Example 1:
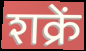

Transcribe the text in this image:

शक्रें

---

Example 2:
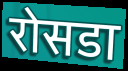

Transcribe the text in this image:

रोसडा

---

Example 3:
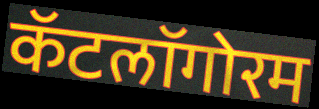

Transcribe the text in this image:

कॅटलॉगोरम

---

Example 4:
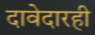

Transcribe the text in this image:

दावेदारही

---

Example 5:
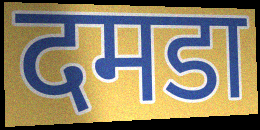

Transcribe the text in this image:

दमडा